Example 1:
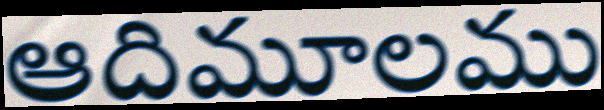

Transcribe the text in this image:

ఆదిమూలము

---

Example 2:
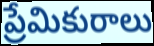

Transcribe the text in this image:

ప్రేమికురాలు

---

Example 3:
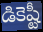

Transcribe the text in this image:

డికెష్టీ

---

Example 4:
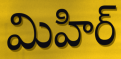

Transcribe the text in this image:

మిహిర్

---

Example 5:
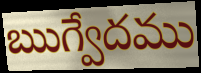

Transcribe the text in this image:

ఋగ్వేదము